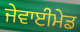
ਜੇਵਾਈਮੇਡ